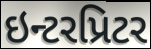
ઇન્ટરપ્રિટર